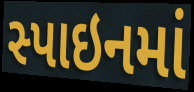
સ્પાઇનમાં